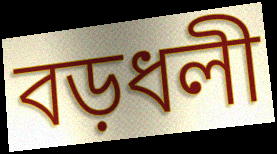
বড়ধলী